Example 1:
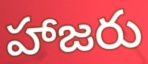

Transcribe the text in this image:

హాజరు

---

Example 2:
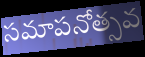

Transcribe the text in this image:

సమాపనోత్సవ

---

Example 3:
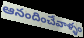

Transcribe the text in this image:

ఆనందించేవాళ్ళం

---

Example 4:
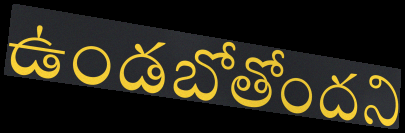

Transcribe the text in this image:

ఉండబోతోందని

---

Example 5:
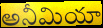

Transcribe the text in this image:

అనీమియా